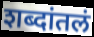
शब्दांतलं